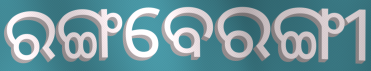
ରଙ୍ଗବେରଙ୍ଗୀ